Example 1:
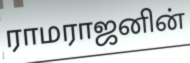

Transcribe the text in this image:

ராமராஜனின்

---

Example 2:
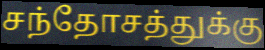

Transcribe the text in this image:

சந்தோசத்துக்கு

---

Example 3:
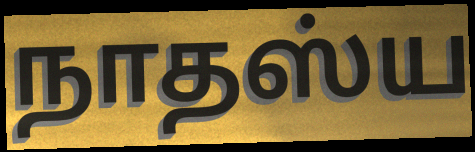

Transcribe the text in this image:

நாதஸ்ய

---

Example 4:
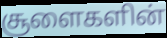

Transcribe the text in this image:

சூளைகளின்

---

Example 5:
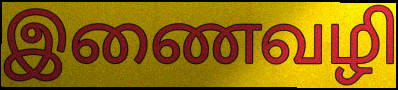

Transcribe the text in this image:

இணைவழி